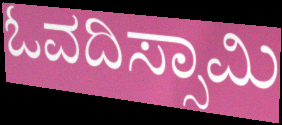
ಓವದಿಸ್ಸಾಮಿ